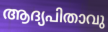
ആദ്യപിതാവു